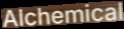
Alchemical